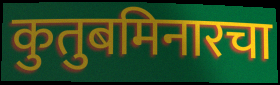
कुतुबमिनारचा